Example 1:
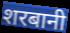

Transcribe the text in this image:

शरबानी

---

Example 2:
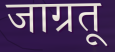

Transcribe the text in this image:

जाग्रतू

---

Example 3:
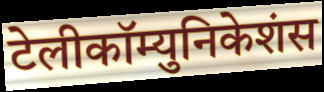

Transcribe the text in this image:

टेलीकॉम्युनिकेशंस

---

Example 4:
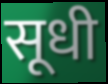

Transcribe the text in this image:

सूधी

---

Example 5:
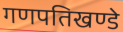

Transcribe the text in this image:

गणपतिखण्डे